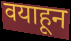
वयाहून